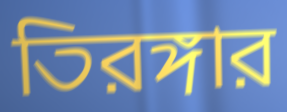
তিরঙ্গার